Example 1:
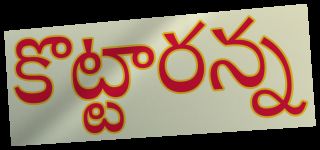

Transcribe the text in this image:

కొట్టారన్న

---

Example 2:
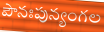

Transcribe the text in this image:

పౌనఃపున్యంగల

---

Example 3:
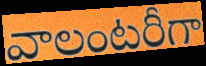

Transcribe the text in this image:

వాలంటరీగా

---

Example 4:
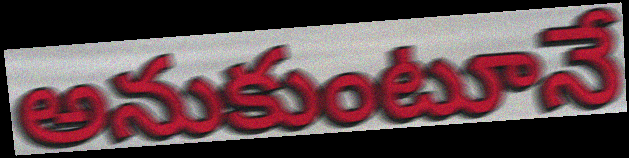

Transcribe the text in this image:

అనుకుంటూనే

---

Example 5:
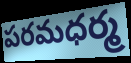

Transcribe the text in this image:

పరమధర్మ